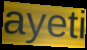
ayeti